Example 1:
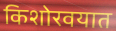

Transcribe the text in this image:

किशोरवयात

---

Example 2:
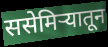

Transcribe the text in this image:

ससेमिऱ्यातून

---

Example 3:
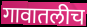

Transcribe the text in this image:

गावातलीच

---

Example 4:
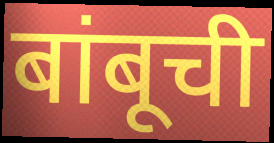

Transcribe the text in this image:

बांबूची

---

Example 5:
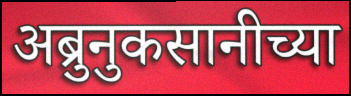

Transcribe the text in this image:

अब्रुनुकसानीच्या